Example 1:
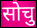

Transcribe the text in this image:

सोचु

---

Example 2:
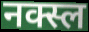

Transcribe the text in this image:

नक्स्ल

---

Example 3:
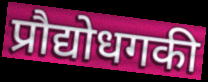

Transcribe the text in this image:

प्रौद्योधगकी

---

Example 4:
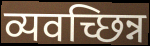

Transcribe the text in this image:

व्यवच्छिन्न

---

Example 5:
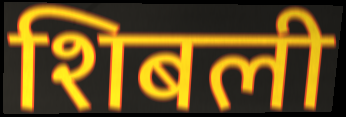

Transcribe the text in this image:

शिबली